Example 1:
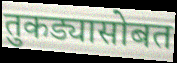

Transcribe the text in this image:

तुकड्यासोबत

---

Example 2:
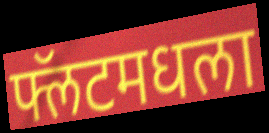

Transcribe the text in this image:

फ्लॅटमधला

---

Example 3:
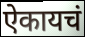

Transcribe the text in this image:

ऐकायचं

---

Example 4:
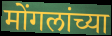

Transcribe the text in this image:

मोंगलांच्या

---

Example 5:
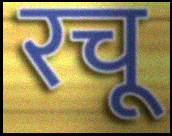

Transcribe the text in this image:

रचू